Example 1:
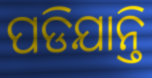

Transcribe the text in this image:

ପଡିଯାନ୍ତି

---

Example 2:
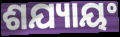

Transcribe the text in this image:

ଶଯ୍ୟାୟଂ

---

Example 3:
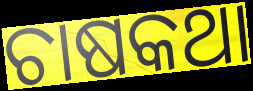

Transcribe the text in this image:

ଚାଷକଥା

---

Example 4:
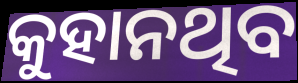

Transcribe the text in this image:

କୁହାନଥିବ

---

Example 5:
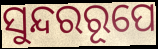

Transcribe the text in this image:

ସୁନ୍ଦରରୂପେ